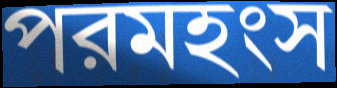
পরমহংস